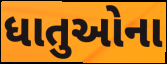
ધાતુઓના